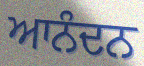
ਆਨੰਦਨ